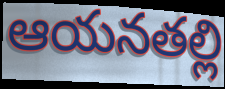
ఆయనతల్లి